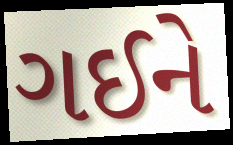
ગઈને